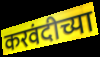
करवंदीच्या